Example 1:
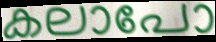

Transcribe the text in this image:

കലാപോ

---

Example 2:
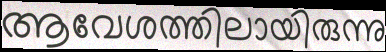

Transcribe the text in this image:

ആവേശത്തിലായിരുന്നു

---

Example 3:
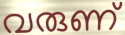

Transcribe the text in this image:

വരുണ്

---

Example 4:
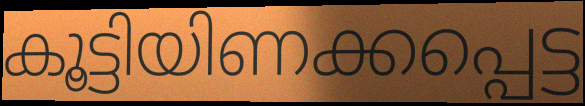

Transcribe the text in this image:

കൂട്ടിയിണക്കപ്പെട്ട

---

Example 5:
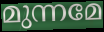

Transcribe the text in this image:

മുന്നമേ